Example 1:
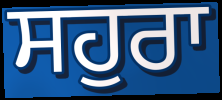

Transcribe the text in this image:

ਸਹੁਰਾ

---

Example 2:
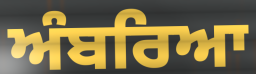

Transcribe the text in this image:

ਅੰਬਰਿਆ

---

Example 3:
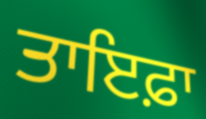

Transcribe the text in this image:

ਤਾਇਫ਼ਾ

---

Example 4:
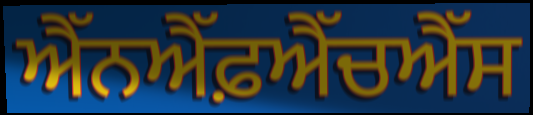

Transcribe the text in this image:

ਐੱਨਐੱਫ਼ਐੱਚਐੱਸ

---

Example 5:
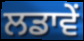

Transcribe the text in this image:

ਲਡਾਵੇਂ